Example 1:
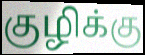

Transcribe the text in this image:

குழிக்கு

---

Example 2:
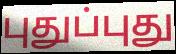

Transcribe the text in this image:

புதுப்புது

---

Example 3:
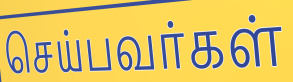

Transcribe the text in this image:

செய்பவர்கள்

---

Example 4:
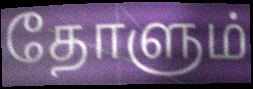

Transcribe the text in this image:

தோளும்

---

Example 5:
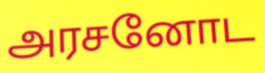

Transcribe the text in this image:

அரசனோட